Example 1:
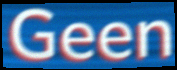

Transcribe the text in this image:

Geen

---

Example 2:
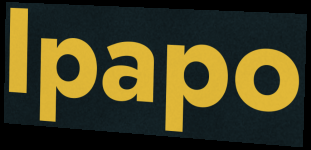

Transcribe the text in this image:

Ipapo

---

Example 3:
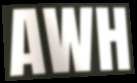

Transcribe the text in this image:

AWH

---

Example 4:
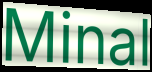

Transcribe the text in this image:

Minal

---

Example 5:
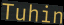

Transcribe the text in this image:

Tuhin